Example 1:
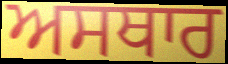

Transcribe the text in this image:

ਅਸਥਾਰ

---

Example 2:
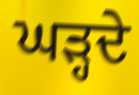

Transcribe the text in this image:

ਘੜ੍ਹਦੇ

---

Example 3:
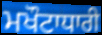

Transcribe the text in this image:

ਮਖੌਟਾਧਾਰੀ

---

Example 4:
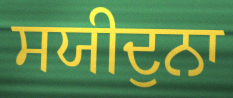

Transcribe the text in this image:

ਸਯੀਦੁਨਾ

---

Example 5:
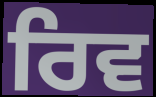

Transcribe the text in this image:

ਰਿਵ